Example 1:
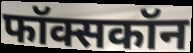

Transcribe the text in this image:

फॉक्सकॉन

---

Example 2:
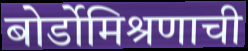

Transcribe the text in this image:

बोर्डोमिश्रणाची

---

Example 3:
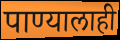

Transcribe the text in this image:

पाण्यालाही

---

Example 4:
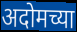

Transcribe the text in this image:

अदोमच्या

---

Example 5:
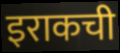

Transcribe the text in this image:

इराकची